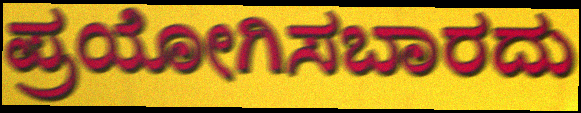
ಪ್ರಯೋಗಿಸಬಾರದು